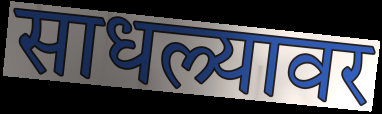
साधल्यावर